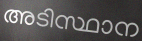
അടിസ്ഥാന